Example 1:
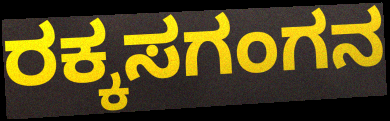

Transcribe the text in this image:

ರಕ್ಕಸಗಂಗನ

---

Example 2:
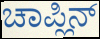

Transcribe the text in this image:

ಚಾಪ್ಲಿನ್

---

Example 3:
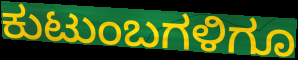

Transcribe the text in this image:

ಕುಟುಂಬಗಳಿಗೂ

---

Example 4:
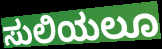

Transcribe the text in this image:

ಸುಲಿಯಲೂ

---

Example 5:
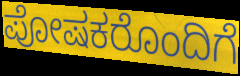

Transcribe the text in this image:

ಪೋಷಕರೊಂದಿಗೆ